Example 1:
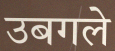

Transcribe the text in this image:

उबगले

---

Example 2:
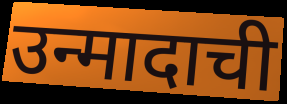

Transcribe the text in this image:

उन्मादाची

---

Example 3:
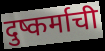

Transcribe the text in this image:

दुष्कर्माची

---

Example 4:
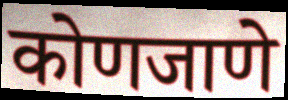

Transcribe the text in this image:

कोणजाणे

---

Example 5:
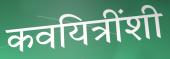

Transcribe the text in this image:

कवयित्रींशी